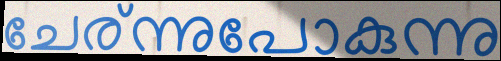
ചേര്ന്നുപോകുന്നു